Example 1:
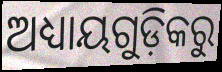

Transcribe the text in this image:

ଅଧ୍ୟାୟଗୁଡ଼ିକରୁ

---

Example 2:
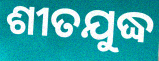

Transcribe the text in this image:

ଶୀତଯୁଦ୍ଧ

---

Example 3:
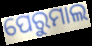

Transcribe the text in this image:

ପେରୁମାଲ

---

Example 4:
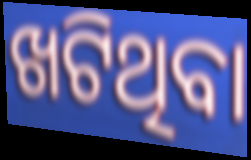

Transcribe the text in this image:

ଖଟିଥିବା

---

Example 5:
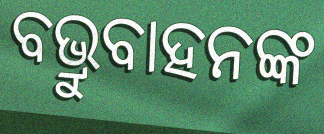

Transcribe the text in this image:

ବଭ୍ରୁବାହନଙ୍କ